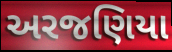
અરજણિયા